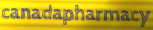
canadapharmacy